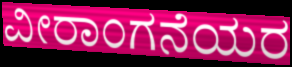
ವೀರಾಂಗನೆಯರ